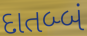
દાતબ્બં